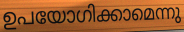
ഉപയോഗിക്കാമെന്നു